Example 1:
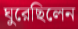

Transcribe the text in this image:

ঘুরেছিলেন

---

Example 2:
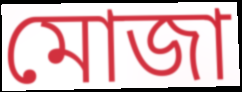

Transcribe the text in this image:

মোজা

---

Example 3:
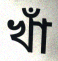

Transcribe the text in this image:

খাঁ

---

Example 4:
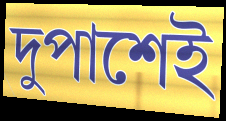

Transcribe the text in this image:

দুপাশেই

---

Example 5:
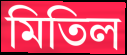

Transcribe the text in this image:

মিতিল